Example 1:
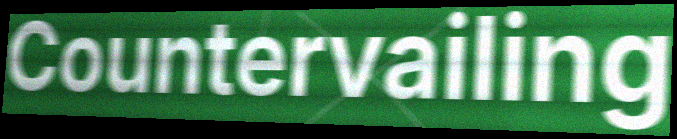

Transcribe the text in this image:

Countervailing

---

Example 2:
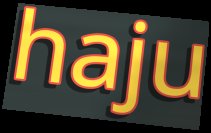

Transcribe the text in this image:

haju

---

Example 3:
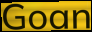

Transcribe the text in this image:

Goan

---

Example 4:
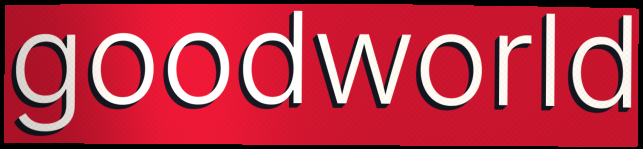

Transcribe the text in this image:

goodworld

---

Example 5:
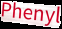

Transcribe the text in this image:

Phenyl